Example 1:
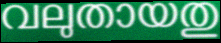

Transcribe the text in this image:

വലുതായതു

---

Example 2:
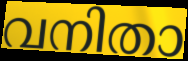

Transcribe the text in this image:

വനിതാ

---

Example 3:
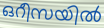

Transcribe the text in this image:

ഒറീസയിൽ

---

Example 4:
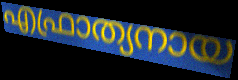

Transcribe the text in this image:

എഫ്രാത്യനായ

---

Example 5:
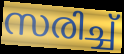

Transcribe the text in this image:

സരിച്ച്